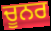
ਚੂਨਰ